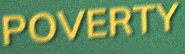
POVERTY